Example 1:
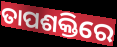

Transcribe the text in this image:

ତାପଶକ୍ତିରେ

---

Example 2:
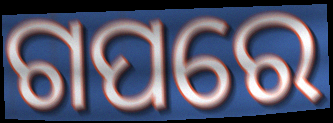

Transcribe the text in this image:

ଗପରେ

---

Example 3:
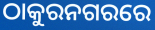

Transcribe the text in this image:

ଠାକୁରନଗରରେ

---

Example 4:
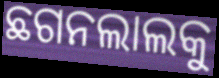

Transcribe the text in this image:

ଛଗନଲାଲକୁ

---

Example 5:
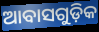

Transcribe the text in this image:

ଆବାସଗୁଡ଼ିକ